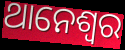
ଥାନେଶ୍ୱର